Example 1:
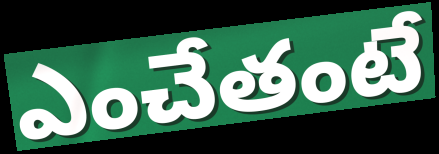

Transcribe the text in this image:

ఎంచేతంటే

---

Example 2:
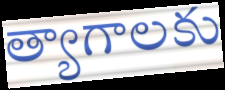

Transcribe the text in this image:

త్యాగాలకు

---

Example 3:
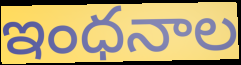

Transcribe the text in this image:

ఇంధనాల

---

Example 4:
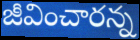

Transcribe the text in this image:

జీవించారన్న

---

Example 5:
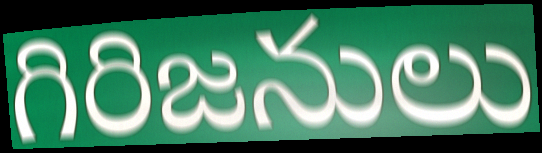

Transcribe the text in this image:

గిరిజనులు